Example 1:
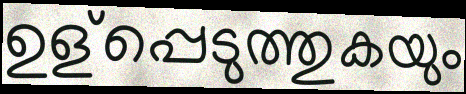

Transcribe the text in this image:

ഉള്പ്പെടുത്തുകയും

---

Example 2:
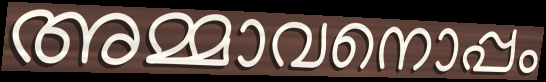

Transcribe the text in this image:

അമ്മാവനൊപ്പം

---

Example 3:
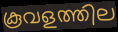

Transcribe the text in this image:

കൂവളത്തില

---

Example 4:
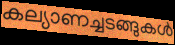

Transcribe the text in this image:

കല്യാണച്ചടങ്ങുകൾ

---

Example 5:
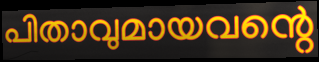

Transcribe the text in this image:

പിതാവുമായവന്റെ